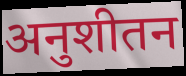
अनुशीतन